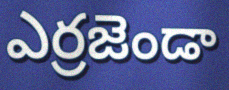
ఎర్రజెండా